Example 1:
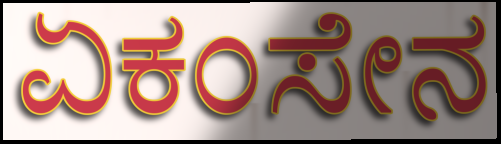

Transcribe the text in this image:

ಏಕಂಸೇನ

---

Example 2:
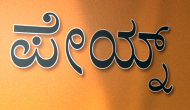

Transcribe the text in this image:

ಪೇಯ್ನ್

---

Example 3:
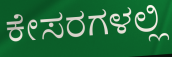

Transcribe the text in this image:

ಕೇಸರಗಳಲ್ಲಿ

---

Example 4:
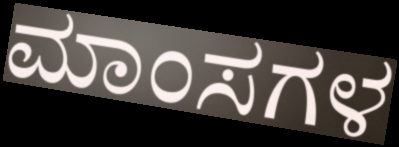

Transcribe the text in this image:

ಮಾಂಸಗಳ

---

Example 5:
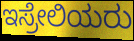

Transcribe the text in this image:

ಇಸ್ರೇಲಿಯರು